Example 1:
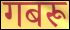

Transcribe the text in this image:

गबरू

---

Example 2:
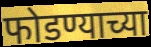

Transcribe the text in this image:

फोडण्याच्या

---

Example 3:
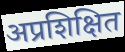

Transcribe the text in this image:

अप्रशिक्षित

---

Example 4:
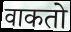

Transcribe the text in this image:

वाकतो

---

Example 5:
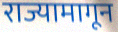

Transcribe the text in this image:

राज्यामागून